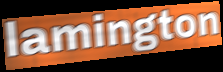
lamington